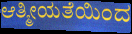
ಆತ್ಮೀಯತೆಯಿಂದ